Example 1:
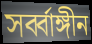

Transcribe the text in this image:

সর্ব্বাঙ্গীন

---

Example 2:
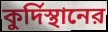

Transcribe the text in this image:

কুর্দিস্থানের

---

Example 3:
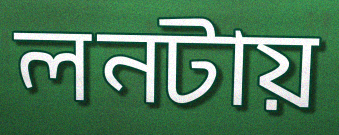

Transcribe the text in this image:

লনটায়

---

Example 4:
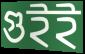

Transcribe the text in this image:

গুইই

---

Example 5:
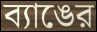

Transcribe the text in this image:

ব্যাঙের